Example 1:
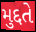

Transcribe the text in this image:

મુદ્દતે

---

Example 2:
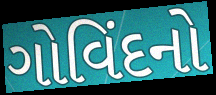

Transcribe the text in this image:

ગોવિંદનો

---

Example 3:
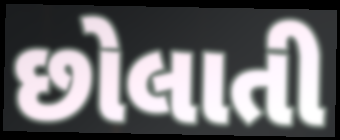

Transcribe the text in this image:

છોલાતી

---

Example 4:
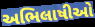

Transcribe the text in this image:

અભિલાષીઓ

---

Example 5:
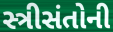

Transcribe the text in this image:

સ્ત્રીસંતોની